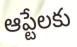
ఆప్టేలకు